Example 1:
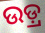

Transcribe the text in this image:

ଉଡ଼୍ର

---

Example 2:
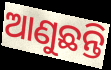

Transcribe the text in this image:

ଆଣୁଛନ୍ତି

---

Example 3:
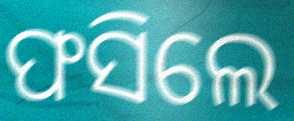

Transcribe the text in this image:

ଫସିଲେ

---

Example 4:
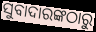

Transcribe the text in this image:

ସୁବାଦାରଙ୍କଠାରୁ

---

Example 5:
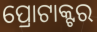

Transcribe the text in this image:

ପ୍ରୋଟାକ୍ଟର